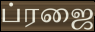
ப்ரஜை